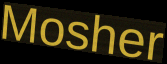
Mosher